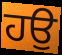
ਹਉ